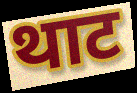
थाट